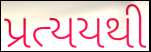
પ્રત્યયથી